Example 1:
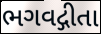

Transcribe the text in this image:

ભગવદ્ગીતા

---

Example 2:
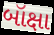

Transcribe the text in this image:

બૉક્ષા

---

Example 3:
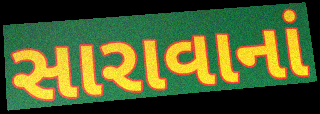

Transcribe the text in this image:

સારાવાનાં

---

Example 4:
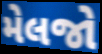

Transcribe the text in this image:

મેલજો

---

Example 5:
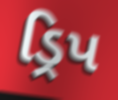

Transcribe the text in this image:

ડ્રિપ